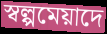
স্বল্পমেয়াদে